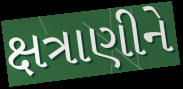
ક્ષત્રાણીને